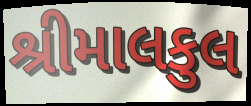
શ્રીમાલકુલ